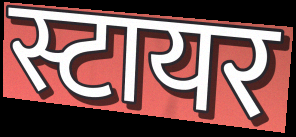
स्टायर